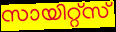
സായിറ്റ്സ്